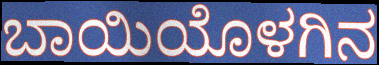
ಬಾಯಿಯೊಳಗಿನ